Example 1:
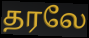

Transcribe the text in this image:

தரலே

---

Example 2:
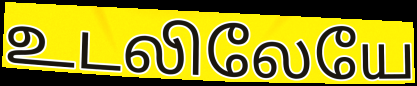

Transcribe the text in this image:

உடலிலேயே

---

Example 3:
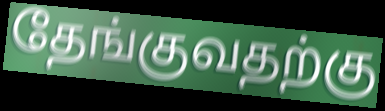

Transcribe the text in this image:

தேங்குவதற்கு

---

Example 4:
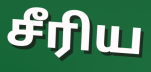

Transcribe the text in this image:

சீரிய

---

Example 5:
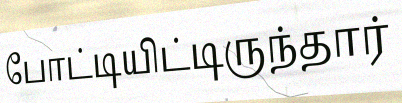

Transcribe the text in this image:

போட்டியிட்டிருந்தார்